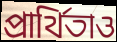
প্রার্থিতাও